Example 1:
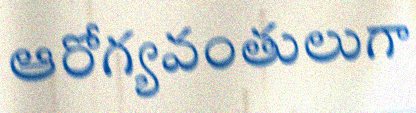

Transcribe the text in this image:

ఆరోగ్యవంతులుగా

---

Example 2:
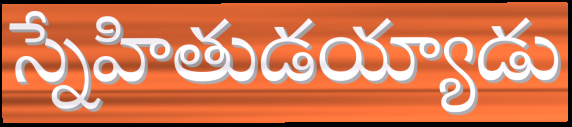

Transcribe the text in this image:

స్నేహితుడయ్యాడు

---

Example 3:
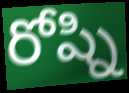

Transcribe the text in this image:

రోష్ని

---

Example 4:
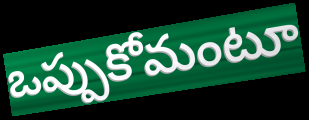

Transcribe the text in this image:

ఒప్పుకోమంటూ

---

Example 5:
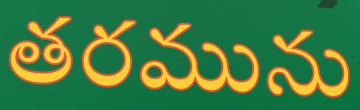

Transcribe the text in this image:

తరమును